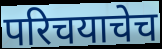
परिचयाचेच